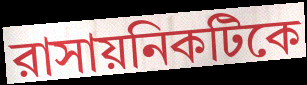
রাসায়নিকটিকে